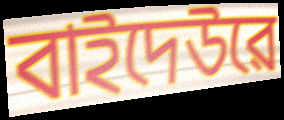
বাইদেউৱে